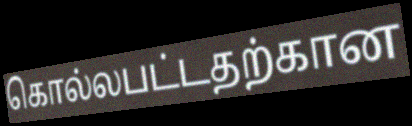
கொல்லபட்டதற்கான